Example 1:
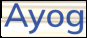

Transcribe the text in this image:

Ayog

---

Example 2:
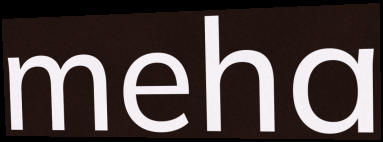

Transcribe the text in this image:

meha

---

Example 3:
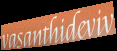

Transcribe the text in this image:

vasanthideviv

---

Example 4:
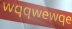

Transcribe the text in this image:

wqqwewqe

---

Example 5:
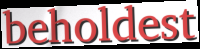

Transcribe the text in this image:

beholdest